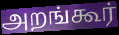
அறங்கூர்